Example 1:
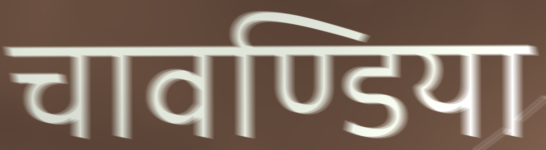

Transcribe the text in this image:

चावण्डिया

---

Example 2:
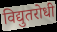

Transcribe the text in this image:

विद्युतरोधी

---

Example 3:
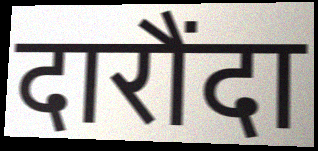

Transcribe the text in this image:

दारौंदा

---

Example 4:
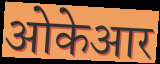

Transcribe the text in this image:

ओकेआर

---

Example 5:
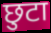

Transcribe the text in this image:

छुटा